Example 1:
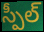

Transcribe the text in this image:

స్పీల్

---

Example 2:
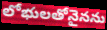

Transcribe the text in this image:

లోభులతోనైనను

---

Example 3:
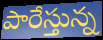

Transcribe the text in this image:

పారేస్తున్న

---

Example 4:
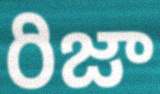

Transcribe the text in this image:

రిజా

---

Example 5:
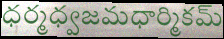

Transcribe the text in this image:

ధర్మధ్వజమధార్మికమ్